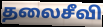
தலைசீவி